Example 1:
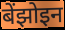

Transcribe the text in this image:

बेंझोइन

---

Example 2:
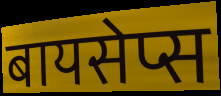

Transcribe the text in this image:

बायसेप्स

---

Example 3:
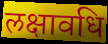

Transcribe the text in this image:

लक्षावधि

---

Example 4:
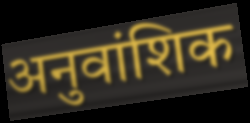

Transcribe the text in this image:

अनुवांशिक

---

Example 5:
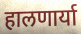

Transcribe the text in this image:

हालणार्या